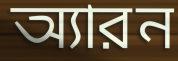
অ্যারন